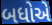
બધોએ